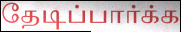
தேடிப்பார்க்க